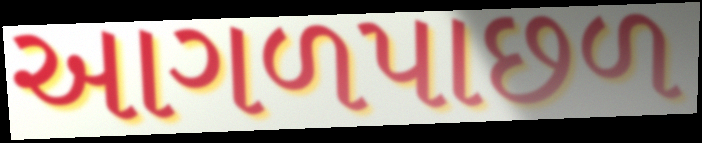
આગળપાછળ